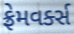
ફ્રેમવર્ક્સ